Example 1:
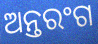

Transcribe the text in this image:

ଅନ୍ତରଂଗ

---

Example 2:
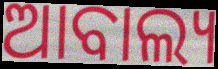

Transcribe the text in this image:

ଆବାଲ୍ୟ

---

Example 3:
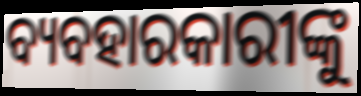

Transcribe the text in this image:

ବ୍ୟବହାରକାରୀଙ୍କୁ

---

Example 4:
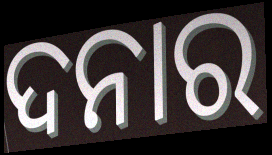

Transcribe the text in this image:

ଦନାର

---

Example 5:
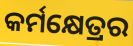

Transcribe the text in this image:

କର୍ମକ୍ଷେତ୍ରର